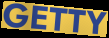
GETTY